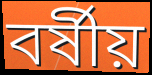
বৰ্ষীয়